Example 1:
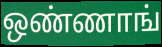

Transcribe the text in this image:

ஒண்ணாங்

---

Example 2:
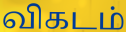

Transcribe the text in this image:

விகடம்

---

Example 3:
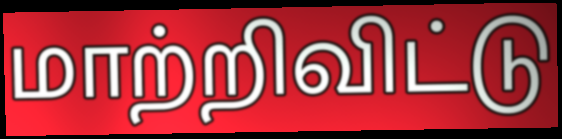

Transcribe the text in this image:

மாற்றிவிட்டு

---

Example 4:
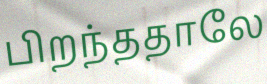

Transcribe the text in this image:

பிறந்ததாலே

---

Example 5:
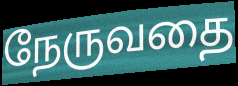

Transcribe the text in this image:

நேருவதை